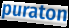
puraton